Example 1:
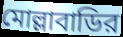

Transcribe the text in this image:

মোল্লাবাডির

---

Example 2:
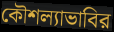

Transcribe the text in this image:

কৌশল্যাভাবির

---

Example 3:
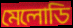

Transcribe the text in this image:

মেলোডি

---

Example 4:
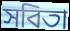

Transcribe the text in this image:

সবিতা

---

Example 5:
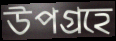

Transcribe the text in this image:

উপগ্রহে